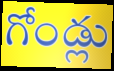
గోండ్లు